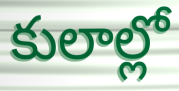
కులాల్లో